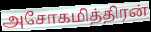
அசோகமித்திரன்